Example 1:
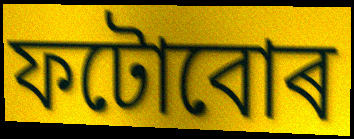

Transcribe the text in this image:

ফটোবোৰ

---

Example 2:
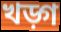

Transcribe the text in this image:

খড়্গ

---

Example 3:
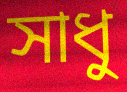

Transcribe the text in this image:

সাধু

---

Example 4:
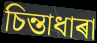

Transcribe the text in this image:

চিন্তাধাৰা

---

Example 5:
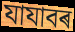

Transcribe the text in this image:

যাযাবৰ